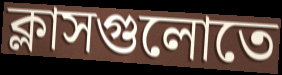
ক্লাসগুলোতে